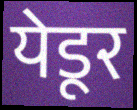
येडूर